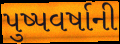
પુષ્પવર્ષાની